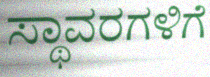
ಸ್ಥಾವರಗಳಿಗೆ